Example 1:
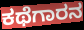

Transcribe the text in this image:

ಕಥೆಗಾರನ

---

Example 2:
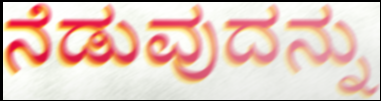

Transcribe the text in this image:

ನೆಡುವುದನ್ನು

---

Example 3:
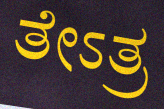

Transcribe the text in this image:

ತೇಽತ್ರ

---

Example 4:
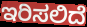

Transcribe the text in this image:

ಇರಿಸಲಿದೆ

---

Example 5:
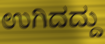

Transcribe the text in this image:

ಉಗಿದದ್ದು